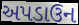
અપડાઉન